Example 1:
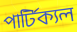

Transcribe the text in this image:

পার্টিক্যল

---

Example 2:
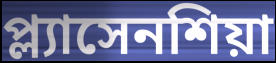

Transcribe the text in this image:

প্ল্যাসেনশিয়া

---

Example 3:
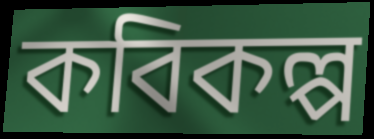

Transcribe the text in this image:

কবিকল্প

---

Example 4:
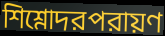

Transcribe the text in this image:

শিশ্নোদরপরায়ণ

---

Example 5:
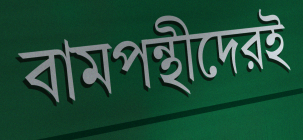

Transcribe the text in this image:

বামপন্থীদেরই